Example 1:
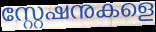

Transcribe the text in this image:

സ്റ്റേഷനുകളെ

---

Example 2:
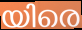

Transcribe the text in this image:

യിരെ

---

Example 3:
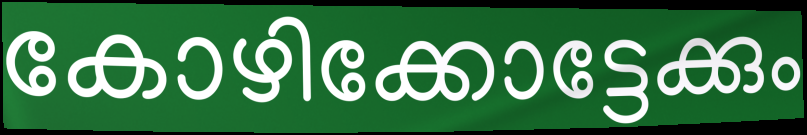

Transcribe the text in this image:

കോഴിക്കോട്ടേക്കും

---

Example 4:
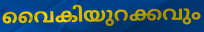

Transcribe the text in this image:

വൈകിയുറക്കവും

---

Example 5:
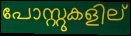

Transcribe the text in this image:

പോസ്റ്റുകളില്